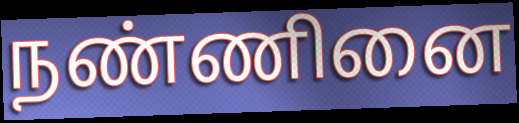
நண்ணினை